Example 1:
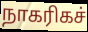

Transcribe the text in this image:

நாகரிகச்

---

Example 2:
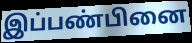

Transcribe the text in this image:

இப்பண்பினை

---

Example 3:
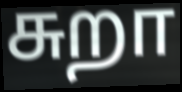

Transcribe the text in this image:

சுறா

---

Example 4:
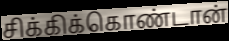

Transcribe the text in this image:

சிக்கிக்கொண்டான்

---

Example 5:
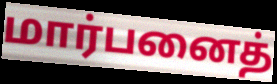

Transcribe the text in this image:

மார்பனைத்